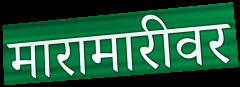
मारामारीवर